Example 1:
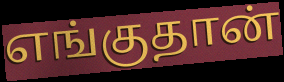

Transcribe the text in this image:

எங்குதான்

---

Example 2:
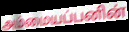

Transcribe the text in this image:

அம்மையப்பனின்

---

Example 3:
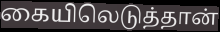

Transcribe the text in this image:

கையிலெடுத்தான்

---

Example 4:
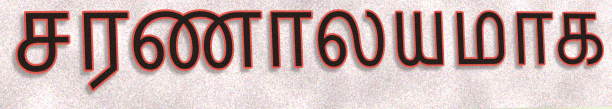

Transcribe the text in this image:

சரணாலயமாக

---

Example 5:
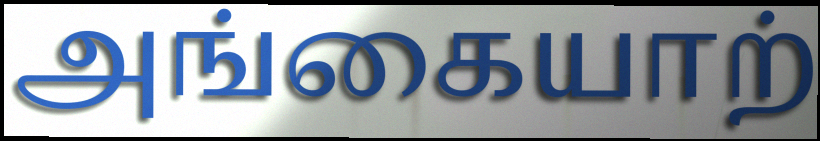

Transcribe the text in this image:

அங்கையாற்